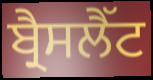
ਬ੍ਰੈਸਲੈੱਟ